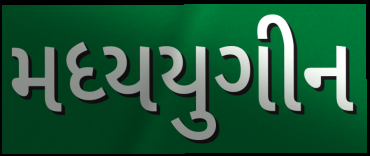
મધ્યયુગીન